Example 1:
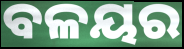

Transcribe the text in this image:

ବଳୟର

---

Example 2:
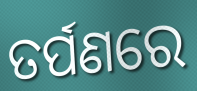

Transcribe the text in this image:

ତର୍ପଣରେ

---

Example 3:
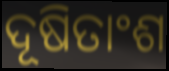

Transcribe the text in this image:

ଦୂଷିତାଂଶ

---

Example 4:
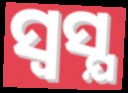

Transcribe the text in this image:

ସ୍ଵସ୍ଯ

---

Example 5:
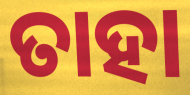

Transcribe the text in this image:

ତାହା